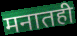
मनातही